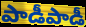
పాడీపాడీ